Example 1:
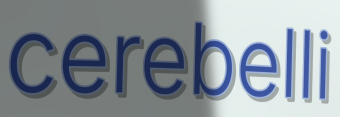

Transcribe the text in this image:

cerebelli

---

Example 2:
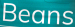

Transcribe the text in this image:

Beans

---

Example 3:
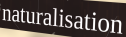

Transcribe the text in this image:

naturalisation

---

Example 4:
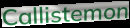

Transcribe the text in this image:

Callistemon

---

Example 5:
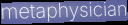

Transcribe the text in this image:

metaphysician